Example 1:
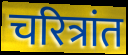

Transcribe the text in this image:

चरित्रांत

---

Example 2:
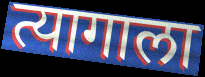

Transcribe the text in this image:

त्यागाला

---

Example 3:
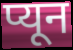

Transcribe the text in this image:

प्यून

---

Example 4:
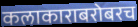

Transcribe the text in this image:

कलाकाराबरोबरच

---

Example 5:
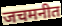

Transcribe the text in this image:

जचमनीत